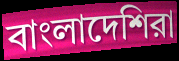
বাংলাদেশিরা